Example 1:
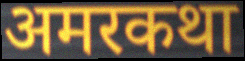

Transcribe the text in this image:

अमरकथा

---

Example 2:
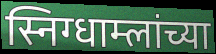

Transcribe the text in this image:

स्निग्धाम्लांच्या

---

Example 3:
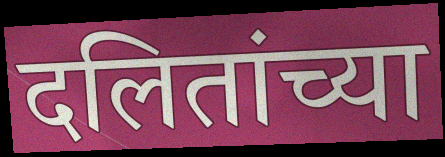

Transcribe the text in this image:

दलितांच्या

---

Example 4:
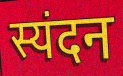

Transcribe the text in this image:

स्यंदन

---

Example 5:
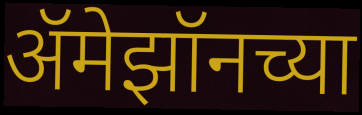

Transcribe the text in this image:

ॲमेझॉनच्या